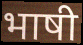
भाषी